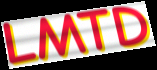
LMTD